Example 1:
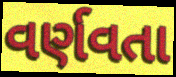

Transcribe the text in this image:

વર્ણવતા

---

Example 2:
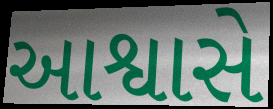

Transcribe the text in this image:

આશ્વાસે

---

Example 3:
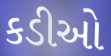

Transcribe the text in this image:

કડીઓ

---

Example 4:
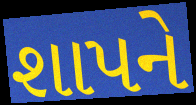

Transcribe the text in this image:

શાપને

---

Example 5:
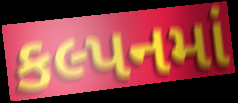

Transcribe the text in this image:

કલ્પનમાં